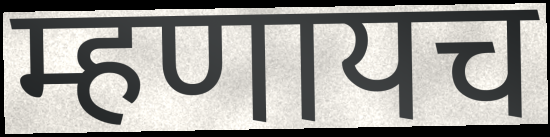
म्हणायच